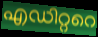
എഡിറ്ററെ